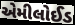
એમીલોઈડ